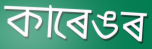
কাৰেঙৰ